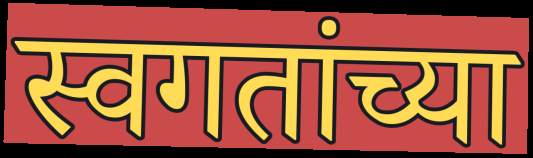
स्वगतांच्या